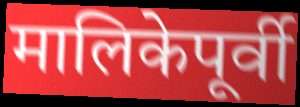
मालिकेपूर्वी